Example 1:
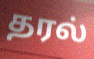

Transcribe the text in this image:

தரல்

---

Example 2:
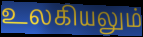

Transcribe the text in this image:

உலகியலும்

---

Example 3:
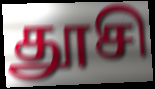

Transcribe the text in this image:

தூசி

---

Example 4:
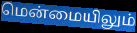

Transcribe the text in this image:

மென்மையிலும்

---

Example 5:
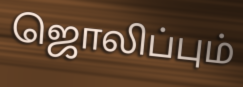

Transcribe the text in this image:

ஜொலிப்பும்